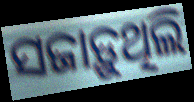
ସଜାଡ଼ୁଥିଲି